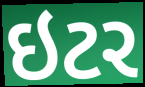
ઇટર